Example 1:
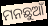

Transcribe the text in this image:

ମନଛୁଆଁ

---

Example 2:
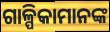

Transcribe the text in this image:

ଗାଳ୍ପିକାମାନଙ୍କ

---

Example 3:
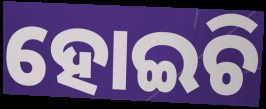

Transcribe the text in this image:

ହୋଇଚି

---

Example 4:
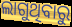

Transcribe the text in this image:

ଲାଗୁଥିବାରୁ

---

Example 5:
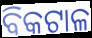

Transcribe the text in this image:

ବିକଟାଳ